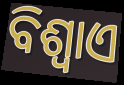
ବିଶ୍ୱାଏ